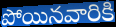
పోయినవారికి